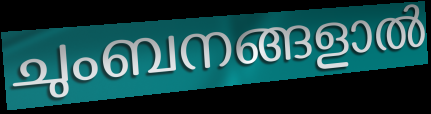
ചുംബനങ്ങളാൽ